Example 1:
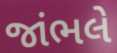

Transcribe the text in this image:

જાંભલે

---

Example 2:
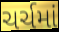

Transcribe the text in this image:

ચર્ચમાં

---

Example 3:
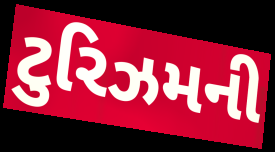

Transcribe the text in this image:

ટુરિઝમની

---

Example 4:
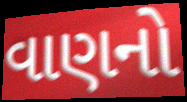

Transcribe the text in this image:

વાણનો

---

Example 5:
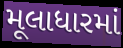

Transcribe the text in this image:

મૂલાધારમાં